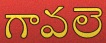
గావలె